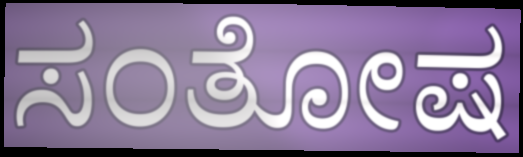
ಸಂತೋಷ